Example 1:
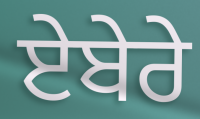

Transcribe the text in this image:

ਏਬੇਰੇ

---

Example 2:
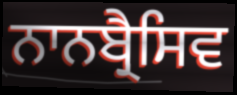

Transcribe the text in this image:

ਨਾਨਬ੍ਰੈਸਿਵ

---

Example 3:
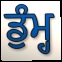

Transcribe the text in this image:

ਡੁੰਮ੍ਹ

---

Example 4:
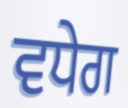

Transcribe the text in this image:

ਵਧੇਗ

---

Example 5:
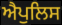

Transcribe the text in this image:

ਐਪੁਲਿਸ